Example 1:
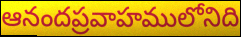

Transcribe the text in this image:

ఆనందప్రవాహములోనిది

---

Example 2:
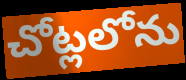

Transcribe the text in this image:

చోట్లలోను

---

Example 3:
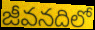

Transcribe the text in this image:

జీవనదిలో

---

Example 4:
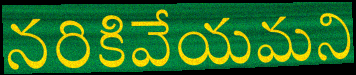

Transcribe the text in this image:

నరికివేయమని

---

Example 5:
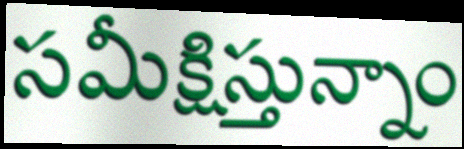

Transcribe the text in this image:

సమీక్షిస్తున్నాం